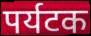
पर्यटक